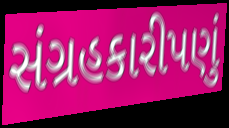
સંગ્રહકારીપણું